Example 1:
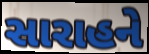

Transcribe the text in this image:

સારાહને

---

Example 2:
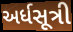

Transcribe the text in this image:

અર્ધસૂત્રી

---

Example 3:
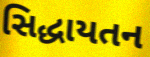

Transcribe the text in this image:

સિદ્ધાયતન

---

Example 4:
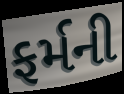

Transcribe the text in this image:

ફર્મની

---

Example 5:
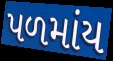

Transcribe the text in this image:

પળમાંય